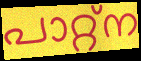
പാറ്റ്ന